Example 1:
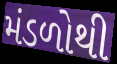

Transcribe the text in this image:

મંડળોથી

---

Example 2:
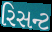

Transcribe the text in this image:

રિસન્ટ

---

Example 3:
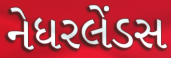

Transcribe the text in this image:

નેધરલેંડસ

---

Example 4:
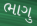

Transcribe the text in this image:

ભાગુ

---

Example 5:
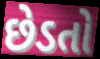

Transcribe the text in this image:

છેડતો